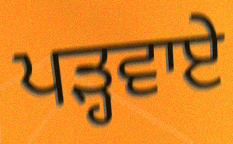
ਪੜ੍ਹਵਾਏ